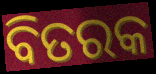
ବିତରକ